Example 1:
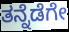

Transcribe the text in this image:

ತನ್ನೆಡೆಗೇ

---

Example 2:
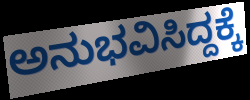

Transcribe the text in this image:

ಅನುಭವಿಸಿದ್ದಕ್ಕೆ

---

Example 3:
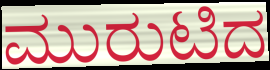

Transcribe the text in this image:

ಮುರುಟಿದ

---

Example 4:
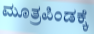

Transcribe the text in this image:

ಮೂತ್ರಪಿಂಡಕ್ಕೆ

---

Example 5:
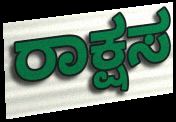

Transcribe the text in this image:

ರಾಕ್ಷಸ